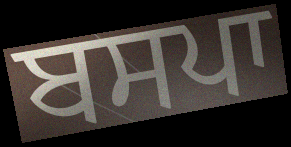
ਬਸਪਾ